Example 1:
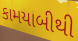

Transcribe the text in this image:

કામયાબીથી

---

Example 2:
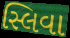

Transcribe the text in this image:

સ્લિવા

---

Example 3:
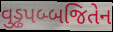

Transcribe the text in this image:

વુડ્ઢપબ્બજિતેન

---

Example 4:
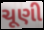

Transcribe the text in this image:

ચૂણી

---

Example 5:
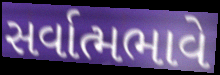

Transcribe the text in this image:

સર્વાત્મભાવે